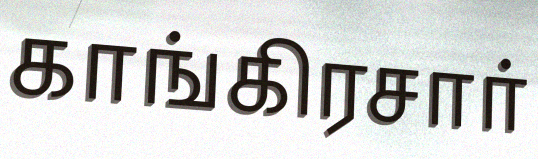
காங்கிரசார்